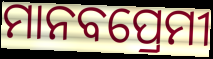
ମାନବପ୍ରେମୀ